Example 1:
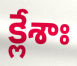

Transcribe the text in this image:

క్లేశాః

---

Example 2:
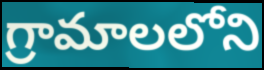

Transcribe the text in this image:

గ్రామాలలోని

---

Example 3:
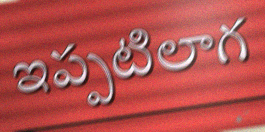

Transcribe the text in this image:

ఇప్పటిలాగ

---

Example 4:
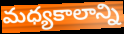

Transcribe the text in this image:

మధ్యకాలాన్ని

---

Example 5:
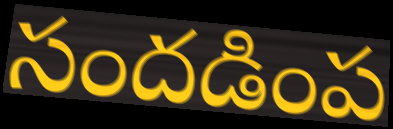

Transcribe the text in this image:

సందడింప